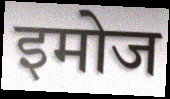
इमोज